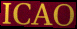
ICAO